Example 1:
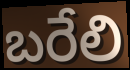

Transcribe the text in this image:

బరేలి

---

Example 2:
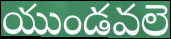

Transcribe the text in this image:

యుండవలె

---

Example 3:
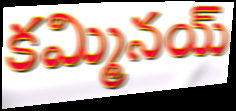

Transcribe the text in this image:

కమ్మినయ్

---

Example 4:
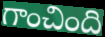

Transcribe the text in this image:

గాంచింది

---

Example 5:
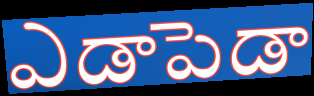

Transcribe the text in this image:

ఎడాపెడా